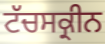
ਟੱਚਸਕ੍ਰੀਨ